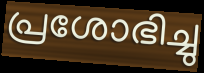
പ്രശോഭിച്ചു